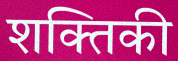
शक्तिकी